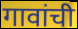
गावांची